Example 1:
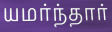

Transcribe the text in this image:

யமர்ந்தார்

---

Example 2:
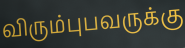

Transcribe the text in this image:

விரும்புபவருக்கு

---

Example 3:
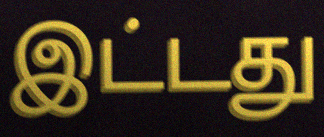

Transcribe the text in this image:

இட்டது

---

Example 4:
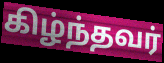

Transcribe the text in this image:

கிழ்ந்தவர்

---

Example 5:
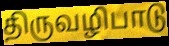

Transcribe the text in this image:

திருவழிபாடு